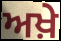
ਅਖ਼ੇ